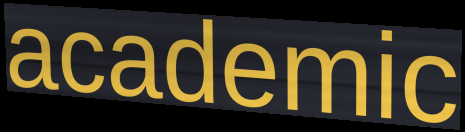
academic